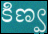
కిణ్వ